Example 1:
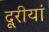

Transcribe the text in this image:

दूरीयां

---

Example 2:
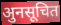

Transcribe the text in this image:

अुनसूचित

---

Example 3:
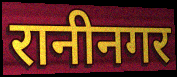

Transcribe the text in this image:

रानीनगर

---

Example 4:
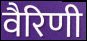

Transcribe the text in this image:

वैरिणी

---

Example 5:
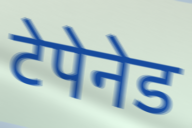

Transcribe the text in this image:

टेपेनेड